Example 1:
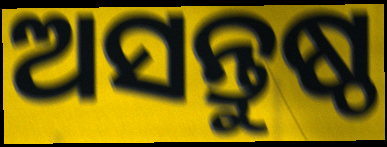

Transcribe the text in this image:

ଅସନ୍ତୁଷ୍ଠ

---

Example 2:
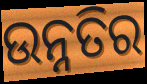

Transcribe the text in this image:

ଉନ୍ନତିର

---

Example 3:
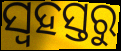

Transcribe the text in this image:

ସ୍ୱହସ୍ତରୁ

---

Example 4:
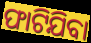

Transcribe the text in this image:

ଫାଟିଯିବା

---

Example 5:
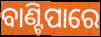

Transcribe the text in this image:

ବାଣ୍ଟିପାରେ